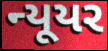
ન્યૂયર